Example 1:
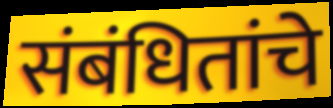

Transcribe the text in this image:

संबंधितांचे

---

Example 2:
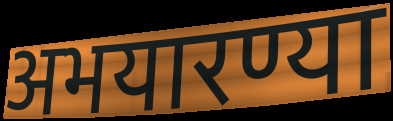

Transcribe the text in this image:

अभयारण्या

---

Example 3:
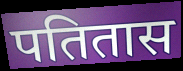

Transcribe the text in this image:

पतितास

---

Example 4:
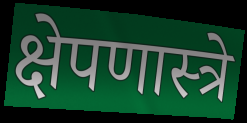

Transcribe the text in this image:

क्षेपणास्त्रे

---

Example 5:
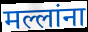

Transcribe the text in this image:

मल्लांना